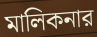
মালিকনার